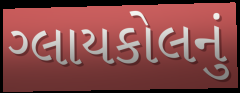
ગ્લાયકોલનું